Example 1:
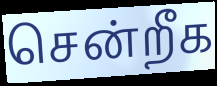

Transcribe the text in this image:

சென்றீக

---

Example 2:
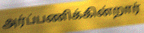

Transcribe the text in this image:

அர்ப்பணிக்கின்றார்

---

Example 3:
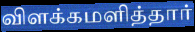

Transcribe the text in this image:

விளக்கமளித்தார்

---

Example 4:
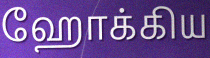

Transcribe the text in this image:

ஹோக்கிய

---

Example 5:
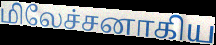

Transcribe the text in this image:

மிலேச்சனாகிய